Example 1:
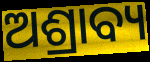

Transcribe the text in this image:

ଅଶ୍ରାବ୍ୟ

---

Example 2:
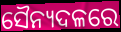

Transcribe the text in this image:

ସୈନ୍ୟଦଳରେ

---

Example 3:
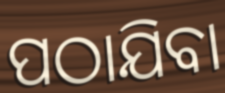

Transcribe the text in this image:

ପଠାଯିବା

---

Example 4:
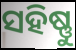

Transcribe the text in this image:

ସହିଷ୍ଣୁ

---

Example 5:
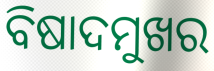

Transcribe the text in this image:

ବିଷାଦମୁଖର